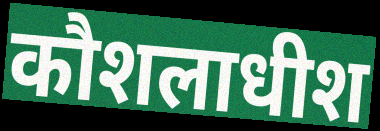
कौशलाधीश